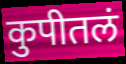
कुपीतलं